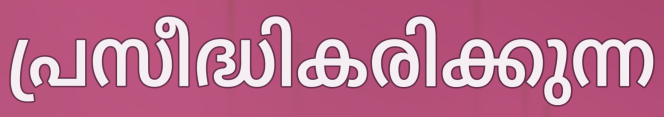
പ്രസീദ്ധികരിക്കുന്ന